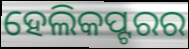
ହେଲିକପ୍ଟରର